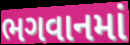
ભગવાનમાં